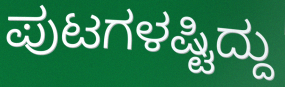
ಪುಟಗಳಷ್ಟಿದ್ದು